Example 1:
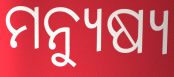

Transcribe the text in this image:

ମନ୍ୟୁଷ୍ୟ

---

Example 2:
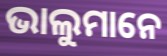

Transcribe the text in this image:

ଭାଲୁମାନେ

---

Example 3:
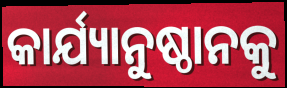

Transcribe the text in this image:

କାର୍ଯ୍ୟାନୁଷ୍ଠାନକୁ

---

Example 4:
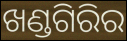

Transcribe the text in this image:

ଖଣ୍ଡଗିରିର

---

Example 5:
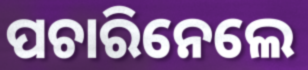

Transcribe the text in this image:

ପଚାରିନେଲେ